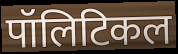
पॉलिटिकल